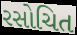
રસોચિત